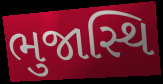
ભુજાસ્થિ